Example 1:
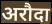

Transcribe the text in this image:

अरौदा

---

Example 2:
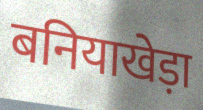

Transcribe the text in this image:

बनियाखेड़ा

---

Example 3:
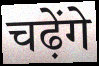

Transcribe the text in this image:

चढ़ेंगे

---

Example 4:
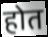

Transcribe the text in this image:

होत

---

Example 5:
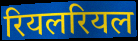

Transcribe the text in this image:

रियलरियल